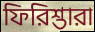
ফিরিশ্তারা